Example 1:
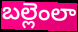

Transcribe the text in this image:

బల్లెంలా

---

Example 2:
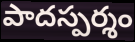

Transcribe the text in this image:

పాదస్పర్శం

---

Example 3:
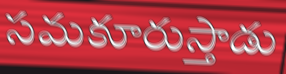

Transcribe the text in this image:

సమకూరుస్తాడు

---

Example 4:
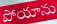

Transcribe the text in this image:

పోయాను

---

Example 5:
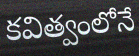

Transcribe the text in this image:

కవిత్వంలోనే